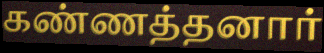
கண்ணத்தனார்